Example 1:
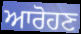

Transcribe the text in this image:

ਆਰੋਹਣ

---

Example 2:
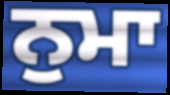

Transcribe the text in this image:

ਨੁਮਾ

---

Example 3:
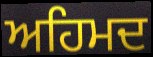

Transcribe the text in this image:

ਅਹਿਮਦ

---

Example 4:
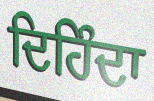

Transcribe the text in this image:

ਦਿਹਿੰਦਾ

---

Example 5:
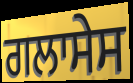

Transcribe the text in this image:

ਗਲਾਸੇਸ